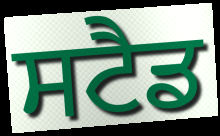
ਸਟੈਡ